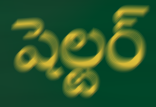
షెల్టర్